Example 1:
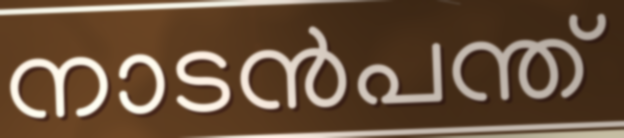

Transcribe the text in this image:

നാടൻപന്ത്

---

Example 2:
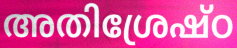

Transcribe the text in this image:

അതിശ്രേഷ്ഠ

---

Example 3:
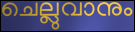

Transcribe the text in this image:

ചെല്ലുവാനും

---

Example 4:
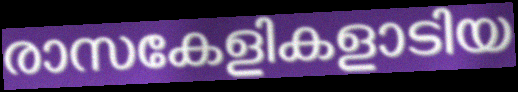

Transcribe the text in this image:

രാസകേളികളാടിയ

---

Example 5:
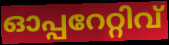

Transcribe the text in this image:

ഓപ്പറേറ്റിവ്